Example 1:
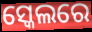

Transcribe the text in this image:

ସ୍କେଲରେ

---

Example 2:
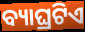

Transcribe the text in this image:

ବ୍ୟାଘ୍ରଟିଏ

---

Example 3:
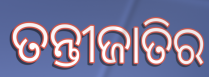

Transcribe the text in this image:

ତନ୍ତୀଜାତିର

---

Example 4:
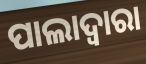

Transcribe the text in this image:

ପାଲାଦ୍ୱାରା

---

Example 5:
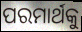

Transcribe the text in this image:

ପରମାର୍ଥକୁ